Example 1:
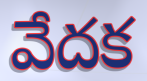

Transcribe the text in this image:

వేదక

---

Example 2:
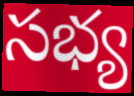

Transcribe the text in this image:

సభ్య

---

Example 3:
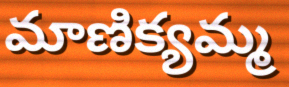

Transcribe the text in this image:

మాణిక్యమ్మ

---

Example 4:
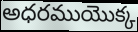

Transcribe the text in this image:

అధరముయొక్క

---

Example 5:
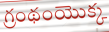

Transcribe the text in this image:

గ్రంథంయొక్క